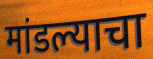
मांडल्याचा